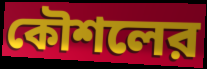
কৌশলের